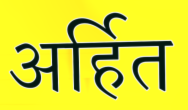
अर्हित